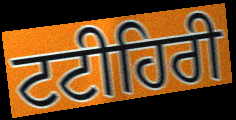
ਟਟੀਹਿਰੀ